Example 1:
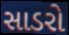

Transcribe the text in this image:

સાડરો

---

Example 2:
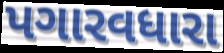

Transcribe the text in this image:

પગારવધારા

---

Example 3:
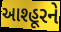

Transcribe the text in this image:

આશ્હૂરને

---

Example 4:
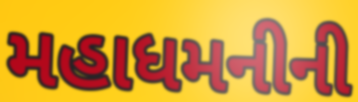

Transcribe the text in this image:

મહાધમનીની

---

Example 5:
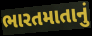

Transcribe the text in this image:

ભારતમાતાનું